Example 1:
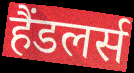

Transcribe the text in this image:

हैंडलर्स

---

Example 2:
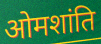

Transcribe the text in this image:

ओमशांति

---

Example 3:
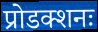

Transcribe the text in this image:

प्रोडक्शनः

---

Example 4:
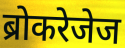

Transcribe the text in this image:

ब्रोकरेजेज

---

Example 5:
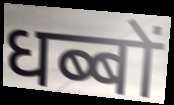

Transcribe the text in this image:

धब्बों